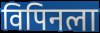
विपिनला